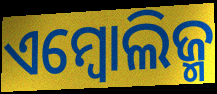
ଏମ୍ବୋଲିଜ୍ମ